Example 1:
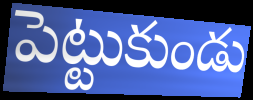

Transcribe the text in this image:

పెట్టుకుండు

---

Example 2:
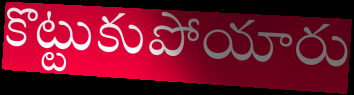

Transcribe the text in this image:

కొట్టుకుపోయారు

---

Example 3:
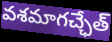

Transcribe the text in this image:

వశమాగచ్ఛేత్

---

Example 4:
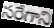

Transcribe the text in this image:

సరేగాని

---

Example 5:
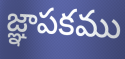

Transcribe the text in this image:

జ్ఞాపకము